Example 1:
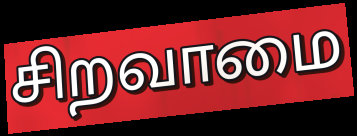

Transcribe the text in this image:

சிறவாமை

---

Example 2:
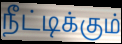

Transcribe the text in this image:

நீட்டிக்கும்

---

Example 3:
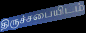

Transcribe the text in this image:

திருச்சபையிடம்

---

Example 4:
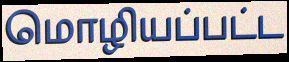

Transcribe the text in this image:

மொழியப்பட்ட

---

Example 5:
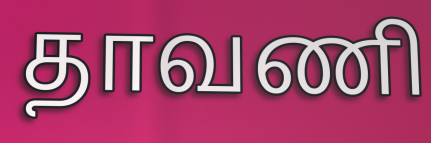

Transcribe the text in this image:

தாவணி